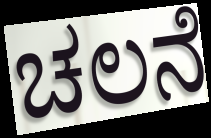
ಚಲನೆ